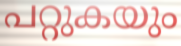
പറ്റുകയും